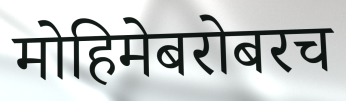
मोहिमेबरोबरच